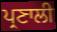
ਪ੍ਰਣਾਲੀ